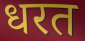
धरत